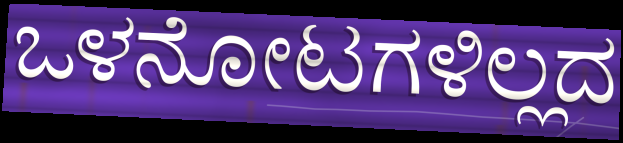
ಒಳನೋಟಗಳಿಲ್ಲದ